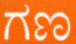
ಗಣ